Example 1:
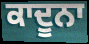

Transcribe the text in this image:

ਕਾਦੂਨਾ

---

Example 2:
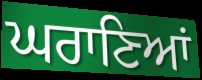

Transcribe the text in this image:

ਘਰਾਣਿਆਂ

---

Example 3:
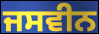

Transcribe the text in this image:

ਜਸਵੀਨ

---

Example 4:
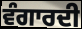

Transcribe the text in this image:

ਵੰਗਾਰਦੀ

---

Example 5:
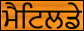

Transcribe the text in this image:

ਮੈਟਿਲਡੇ